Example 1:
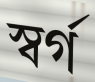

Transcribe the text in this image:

স্বর্গ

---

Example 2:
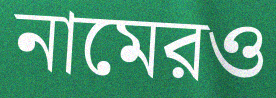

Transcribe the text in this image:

নামেরও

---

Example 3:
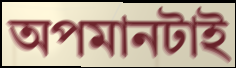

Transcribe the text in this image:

অপমানটাই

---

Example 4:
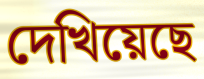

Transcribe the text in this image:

দেখিয়েছে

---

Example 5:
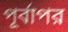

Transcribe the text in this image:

পূর্বাপর